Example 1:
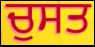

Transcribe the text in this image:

ਚੁਸਤ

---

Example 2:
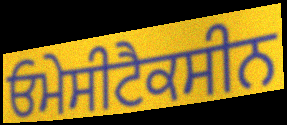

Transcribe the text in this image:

ਓਮੇਸੀਟੈਕਸੀਨ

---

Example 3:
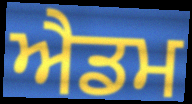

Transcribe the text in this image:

ਐਡਮ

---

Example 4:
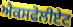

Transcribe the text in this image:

ਐਕਸਫੋਲੀਏਟ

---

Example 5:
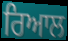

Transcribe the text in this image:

ਰਿਆਲ